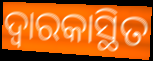
ଦ୍ୱାରକାସ୍ଥିତ